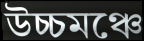
উচ্চমঞ্চে